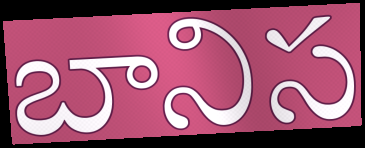
బానిస